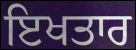
ਇਖਤਾਰ